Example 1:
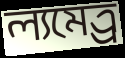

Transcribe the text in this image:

ল্যমেত্র্র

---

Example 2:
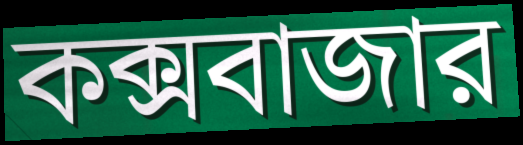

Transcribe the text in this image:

কক্সবাজার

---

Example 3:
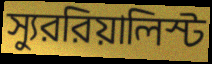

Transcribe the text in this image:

স্যুররিয়ালিস্ট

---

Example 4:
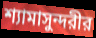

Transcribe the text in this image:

শ্যামাসুন্দরীর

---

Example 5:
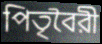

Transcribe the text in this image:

পিতৃবৈরী